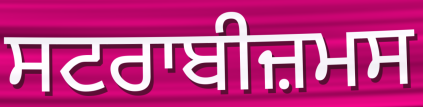
ਸਟਰਾਬੀਜ਼ਮਸ